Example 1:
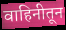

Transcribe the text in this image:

वाहिनीतून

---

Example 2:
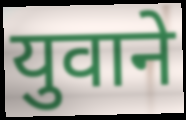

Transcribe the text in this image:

युवाने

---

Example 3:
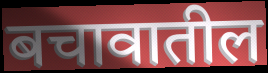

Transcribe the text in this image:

बचावातील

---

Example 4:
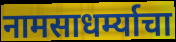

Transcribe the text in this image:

नामसाधर्म्याचा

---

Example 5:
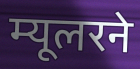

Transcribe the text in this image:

म्यूलरने